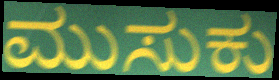
ಮುಸುಕು